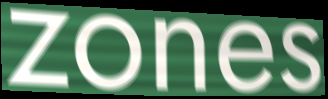
zones